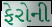
ફેરોની